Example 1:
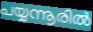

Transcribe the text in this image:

പയ്യന്നൂരിൽ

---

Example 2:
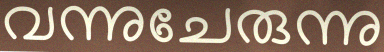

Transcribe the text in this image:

വന്നുചേരുന്നു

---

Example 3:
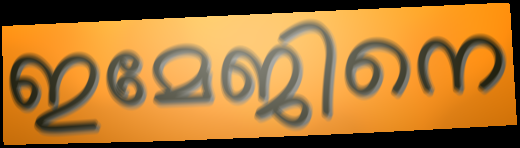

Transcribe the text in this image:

ഇമേജിനെ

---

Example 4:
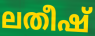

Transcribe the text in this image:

ലതീഷ്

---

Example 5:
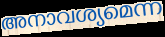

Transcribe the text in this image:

അനാവശ്യമെന്ന